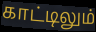
காட்டிலும்